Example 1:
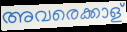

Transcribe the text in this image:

അവരെക്കാള്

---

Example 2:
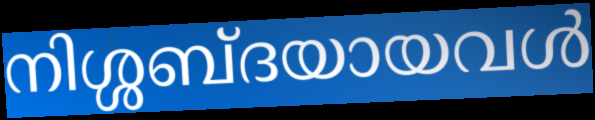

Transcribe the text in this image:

നിശ്ശബ്ദയായവൾ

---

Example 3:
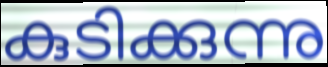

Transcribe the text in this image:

കുടിക്കുന്നു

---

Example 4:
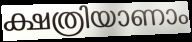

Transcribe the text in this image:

ക്ഷത്രിയാണാം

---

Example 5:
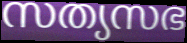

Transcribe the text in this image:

സത്യസഭ